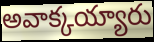
అవాక్కయ్యారు